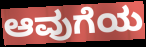
ಆವುಗೆಯ